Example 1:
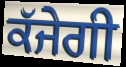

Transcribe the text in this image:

ਕੱਜੇਗੀ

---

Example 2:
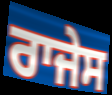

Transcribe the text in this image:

ਰਾਜੇਸ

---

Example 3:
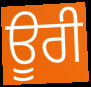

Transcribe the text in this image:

ਊਰੀ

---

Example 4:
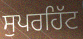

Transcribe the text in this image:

ਸੁਪਰਹਿੱਟ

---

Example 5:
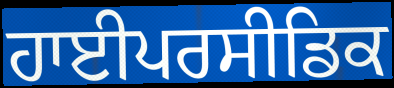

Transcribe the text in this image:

ਹਾਈਪਰਸੀਡਿਕ